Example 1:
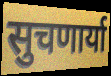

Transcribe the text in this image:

सुचणार्या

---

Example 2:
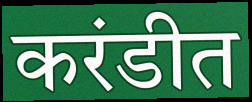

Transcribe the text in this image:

करंडीत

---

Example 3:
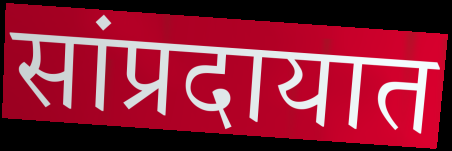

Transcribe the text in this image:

सांप्रदायात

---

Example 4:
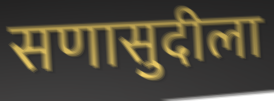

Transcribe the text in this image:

सणासुदीला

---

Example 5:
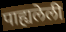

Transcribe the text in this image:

पाह्यलेली